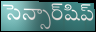
సెన్సార్‌షిప్